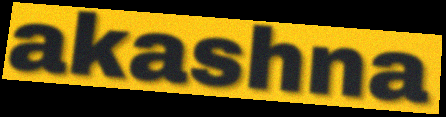
akashna